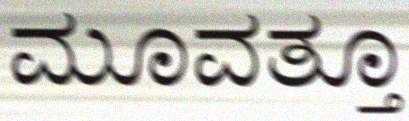
ಮೂವತ್ತೂ